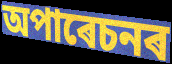
অপাৰেচনৰ